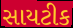
સાયટીક